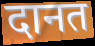
दानत